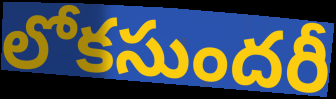
లోకసుందరీ